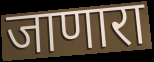
जाणारा